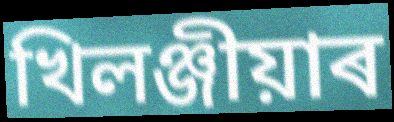
খিলঞ্জীয়াৰ